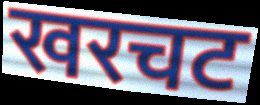
खरचट